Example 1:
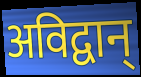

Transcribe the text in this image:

अविद्वान्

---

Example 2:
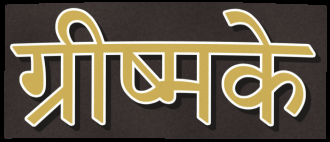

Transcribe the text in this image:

ग्रीष्मके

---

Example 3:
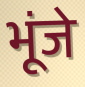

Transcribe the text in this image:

भूंजे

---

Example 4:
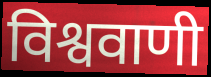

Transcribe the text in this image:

विश्ववाणी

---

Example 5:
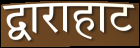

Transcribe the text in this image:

द्वाराहाट